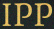
IPP